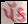
પૅક